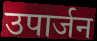
उपार्जन